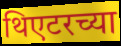
थिएटरच्या